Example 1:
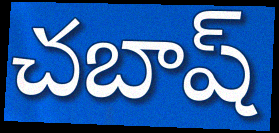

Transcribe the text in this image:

చబాష్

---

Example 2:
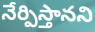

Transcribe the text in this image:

నేర్పిస్తానని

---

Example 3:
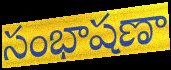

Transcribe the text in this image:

సంభాషణా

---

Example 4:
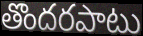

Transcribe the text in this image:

తొందరపాటు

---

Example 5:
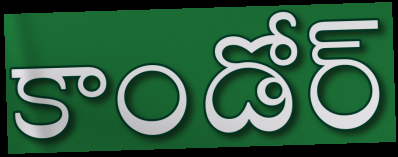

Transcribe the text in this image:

కాండోర్